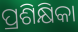
ପ୍ରଶିକ୍ଷିକା